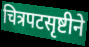
चित्रपटसृष्टीने